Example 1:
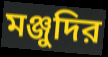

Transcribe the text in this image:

মঞ্জুদির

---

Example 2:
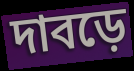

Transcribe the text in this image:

দাবড়ে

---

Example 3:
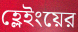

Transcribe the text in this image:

হ্লেইংয়ের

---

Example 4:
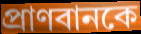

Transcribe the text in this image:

প্রাণবানকে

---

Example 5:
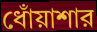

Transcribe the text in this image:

ধোঁয়াশার